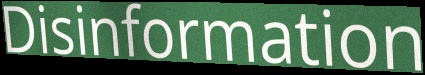
Disinformation